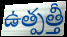
ఉత్పత్తీ